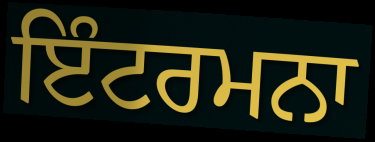
ਇੰਟਰਮਨਾ